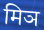
मिञ